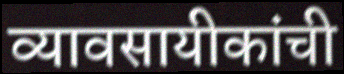
व्यावसायीकांची